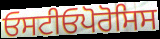
ਓਸਟੀਓਪੋਰੋਸਿਸ